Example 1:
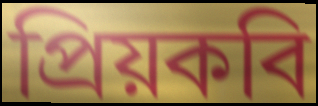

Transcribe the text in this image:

প্রিয়কবি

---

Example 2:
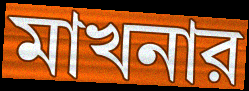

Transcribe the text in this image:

মাখনার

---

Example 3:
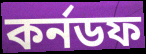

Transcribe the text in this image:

কর্নডফ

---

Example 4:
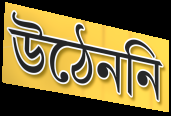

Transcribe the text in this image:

উঠেননি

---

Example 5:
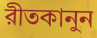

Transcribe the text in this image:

রীতকানুন